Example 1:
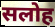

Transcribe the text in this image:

सलोह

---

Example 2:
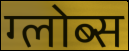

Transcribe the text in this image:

ग्लोब्स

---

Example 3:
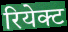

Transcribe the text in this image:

रियेक्ट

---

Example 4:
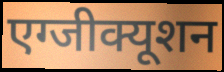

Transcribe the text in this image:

एग्जीक्यूशन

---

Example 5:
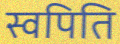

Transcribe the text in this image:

स्वपिति